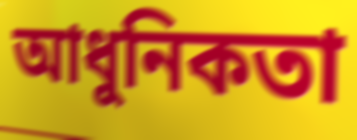
আধুনিকতা